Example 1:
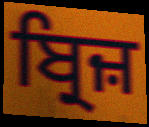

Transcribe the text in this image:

ਬ੍ਰਿਜ਼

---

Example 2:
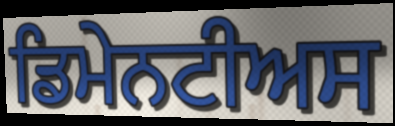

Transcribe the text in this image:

ਡਿਮੇਨਟੀਅਸ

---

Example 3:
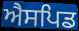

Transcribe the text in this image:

ਐਸਪਿਡ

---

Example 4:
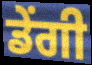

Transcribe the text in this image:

ਡੇਂਗੀ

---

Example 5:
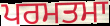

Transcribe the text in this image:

ਪਰਮਤਮਾ